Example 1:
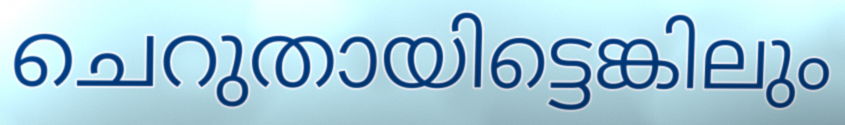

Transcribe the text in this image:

ചെറുതായിട്ടെങ്കിലും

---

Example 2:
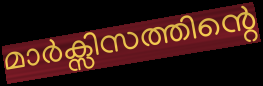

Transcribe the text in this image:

മാർക്സിസത്തിന്റെ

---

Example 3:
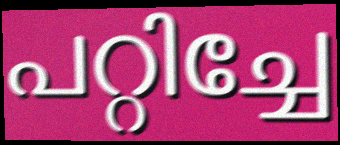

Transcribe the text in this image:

പറ്റിച്ചേ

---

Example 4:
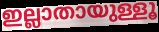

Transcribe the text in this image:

ഇല്ലാതായുള്ളൂ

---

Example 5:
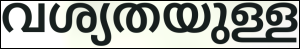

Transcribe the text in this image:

വശ്യതയുള്ള